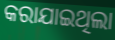
କରାଯାଇଥିଲା